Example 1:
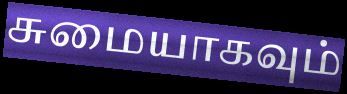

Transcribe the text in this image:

சுமையாகவும்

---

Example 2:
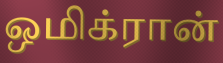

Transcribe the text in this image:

ஒமிக்ரான்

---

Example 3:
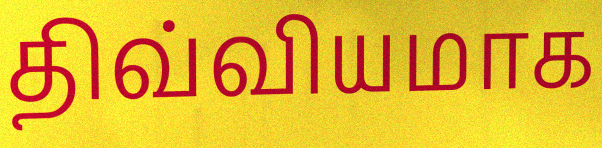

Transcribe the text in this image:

திவ்வியமாக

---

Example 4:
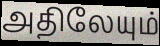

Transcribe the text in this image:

அதிலேயும்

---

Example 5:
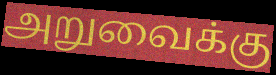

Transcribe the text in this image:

அறுவைக்கு